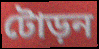
টোড়ন